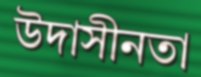
উদাসীনতা